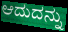
ಆದುದನ್ನು